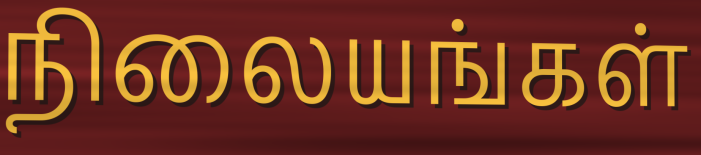
நிலையங்கள்